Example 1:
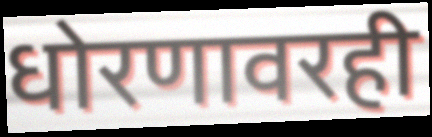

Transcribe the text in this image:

धोरणावरही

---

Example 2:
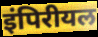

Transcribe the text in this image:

इंपिरीयल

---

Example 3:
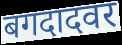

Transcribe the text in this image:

बगदादवर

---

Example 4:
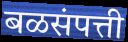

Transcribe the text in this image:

बळसंपत्ती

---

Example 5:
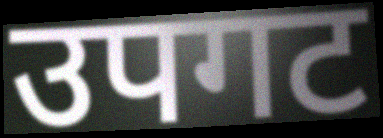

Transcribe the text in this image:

उपगट